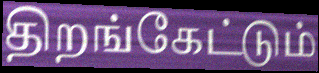
திறங்கேட்டும்